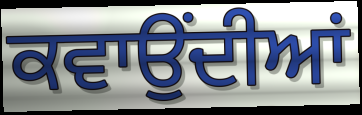
ਕਵਾਉਂਦੀਆਂ